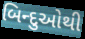
બિન્દુઓથી